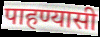
पाहण्यासी